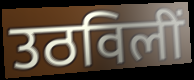
उठविलीं